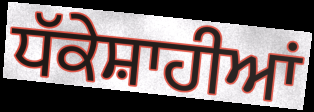
ਧੱਕੇਸ਼ਾਹੀਆਂ